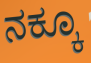
ನಕ್ಕೂ